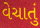
વેચાતું